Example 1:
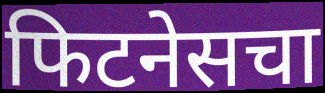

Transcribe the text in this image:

फिटनेसचा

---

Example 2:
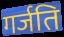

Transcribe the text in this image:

गर्जति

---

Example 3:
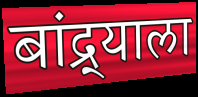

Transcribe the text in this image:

बांद्र्याला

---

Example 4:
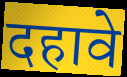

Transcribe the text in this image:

दहावे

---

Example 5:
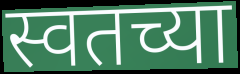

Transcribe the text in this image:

स्वतच्या